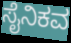
ಸೈನಿಕವ